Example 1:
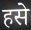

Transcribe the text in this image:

हसे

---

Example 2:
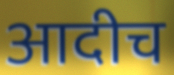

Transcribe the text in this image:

आदीच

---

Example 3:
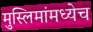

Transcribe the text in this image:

मुस्लिमांमध्येच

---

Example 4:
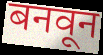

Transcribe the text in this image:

बनवून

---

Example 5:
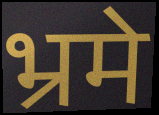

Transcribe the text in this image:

भ्रमे